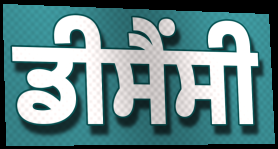
ਡੀਸੈਂਸੀ